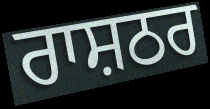
ਰਾਸ਼ਠਰ